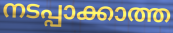
നടപ്പാക്കാത്ത